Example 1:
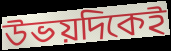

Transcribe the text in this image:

উভয়দিকেই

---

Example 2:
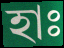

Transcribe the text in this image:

হাঃ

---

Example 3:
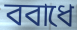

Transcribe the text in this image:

ববাধে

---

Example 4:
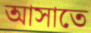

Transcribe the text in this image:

আসাতে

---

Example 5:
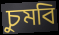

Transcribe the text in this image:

চুমবি